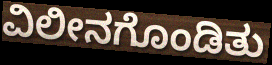
ವಿಲೀನಗೊಂಡಿತು